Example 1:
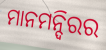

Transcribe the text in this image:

ମାନମନ୍ଦିରର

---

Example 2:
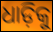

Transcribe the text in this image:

ଧାଡ଼ିକୁ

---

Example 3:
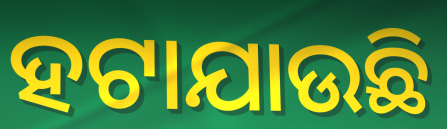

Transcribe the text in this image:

ହଟାଯାଉଛି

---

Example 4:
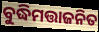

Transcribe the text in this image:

ବୁଦ୍ଧିମତ୍ତାଜନିତ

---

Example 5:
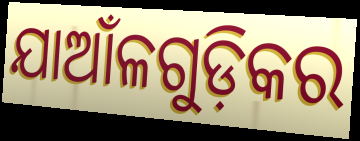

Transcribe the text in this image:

ଯାଆଁଳଗୁଡ଼ିକର